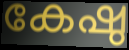
കേഷു